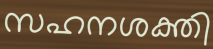
സഹനശക്തി